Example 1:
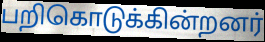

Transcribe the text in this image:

பறிகொடுக்கின்றனர்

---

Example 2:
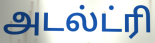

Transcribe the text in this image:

அடல்ட்ரி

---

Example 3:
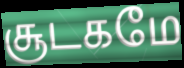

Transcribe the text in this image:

சூடகமே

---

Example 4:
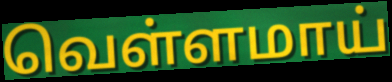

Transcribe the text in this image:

வெள்ளமாய்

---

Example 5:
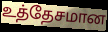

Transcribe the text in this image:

உத்தேசமான